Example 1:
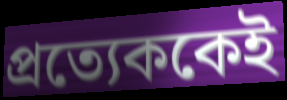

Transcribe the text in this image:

প্রত্যেককেই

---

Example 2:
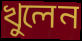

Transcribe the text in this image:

খুলেন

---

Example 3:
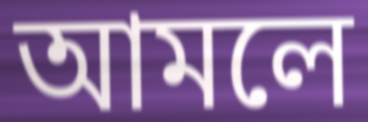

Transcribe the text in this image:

আমলে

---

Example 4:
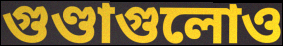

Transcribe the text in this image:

গুণ্ডাগুলোও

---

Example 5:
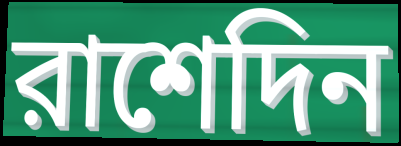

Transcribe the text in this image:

রাশেদিন